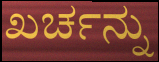
ಖರ್ಚನ್ನು